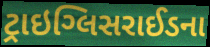
ટ્રાઇગ્લિસરાઈડના